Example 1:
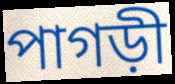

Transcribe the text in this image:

পাগড়ী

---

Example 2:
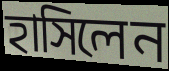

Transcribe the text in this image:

হাসিলেন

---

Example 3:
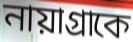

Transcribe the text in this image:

নায়াগ্রাকে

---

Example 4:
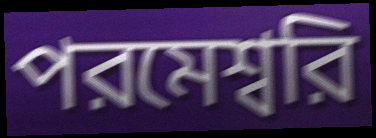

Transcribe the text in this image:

পরমেশ্বরি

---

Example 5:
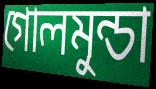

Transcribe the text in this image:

গোলমুন্ডা